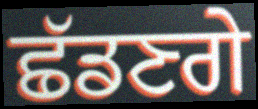
ਛੱਡਣਗੇ